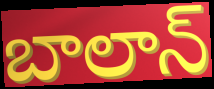
బాలాన్